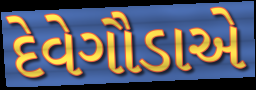
દેવેગૌડાએ